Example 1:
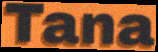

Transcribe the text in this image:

Tana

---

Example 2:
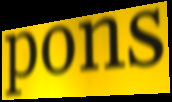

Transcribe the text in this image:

pons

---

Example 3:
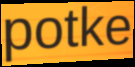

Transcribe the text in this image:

potke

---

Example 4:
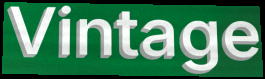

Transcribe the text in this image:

Vintage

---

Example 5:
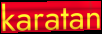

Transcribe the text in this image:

karatan